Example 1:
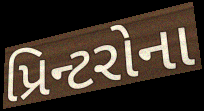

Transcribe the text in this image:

પ્રિન્ટરોના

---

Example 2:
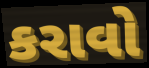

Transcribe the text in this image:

કરાવો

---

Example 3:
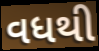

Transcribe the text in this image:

વધથી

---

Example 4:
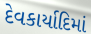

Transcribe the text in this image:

દેવકાર્યાદિમાં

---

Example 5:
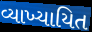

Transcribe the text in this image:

વ્યાખ્યાયિત